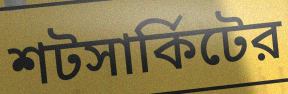
শটসার্কিটের